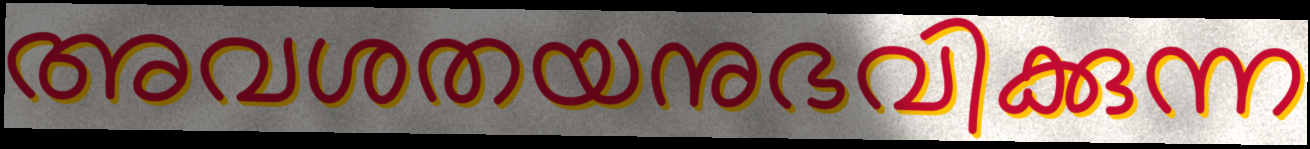
അവശതയനുഭവിക്കുന്ന